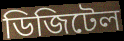
ডিজিটেল